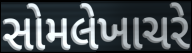
સોમલેખાચરે